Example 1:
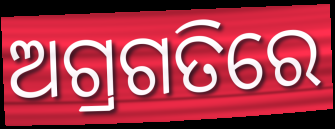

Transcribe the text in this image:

ଅଗ୍ରଗତିରେ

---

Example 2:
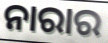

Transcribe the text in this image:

ନାରାର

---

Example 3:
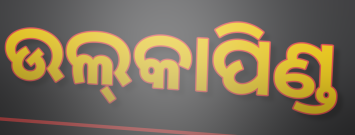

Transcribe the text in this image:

ଉଲ୍‌କାପିଣ୍ଡ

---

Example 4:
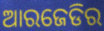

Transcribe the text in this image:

ଆରଜେଡିର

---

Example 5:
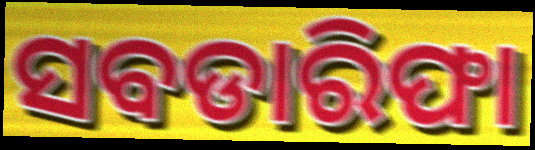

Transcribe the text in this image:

ସବଡାରିଫା